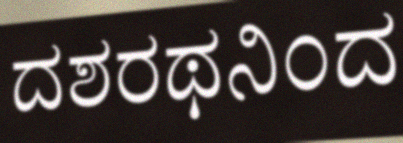
ದಶರಥನಿಂದ